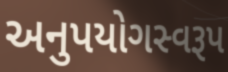
અનુપયોગસ્વરૂપ